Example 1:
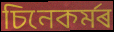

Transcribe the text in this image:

চিনেকৰ্মৰ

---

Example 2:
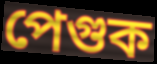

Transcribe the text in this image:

পেগুক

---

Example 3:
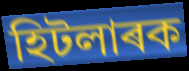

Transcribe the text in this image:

হিটলাৰক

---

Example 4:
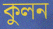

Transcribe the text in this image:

কুলন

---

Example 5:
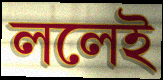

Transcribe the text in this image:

ললেই